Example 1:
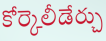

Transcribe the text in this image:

కోర్కెలీడేర్చు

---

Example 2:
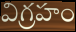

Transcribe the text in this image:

విగ్రహం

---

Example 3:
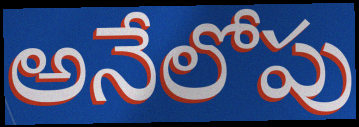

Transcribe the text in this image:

అనేలోపు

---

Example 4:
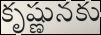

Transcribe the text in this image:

కృష్ణునకు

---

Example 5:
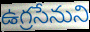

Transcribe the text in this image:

ఉగ్రసేనుని